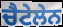
ਚੈਟੇਲੇਨ